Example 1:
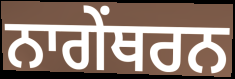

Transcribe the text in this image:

ਨਾਗੇਂਥਰਨ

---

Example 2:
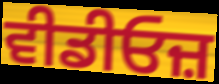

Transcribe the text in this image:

ਵੀਡੀਓਜ਼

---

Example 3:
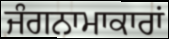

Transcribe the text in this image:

ਜੰਗਨਾਮਾਕਾਰਾਂ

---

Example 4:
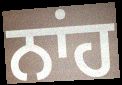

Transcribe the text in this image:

ਨਾਂਹ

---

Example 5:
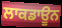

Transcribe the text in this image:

ਲਾਕਡਾਊਨ